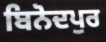
ਬਿਨੋਦਪੁਰ